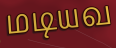
மடியவ